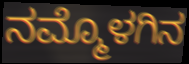
ನಮ್ಮೊಳಗಿನ